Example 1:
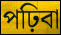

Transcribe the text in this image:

পঢ়িবা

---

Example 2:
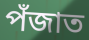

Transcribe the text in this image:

পঁজাত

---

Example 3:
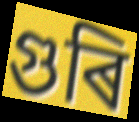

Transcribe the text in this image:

গুৰি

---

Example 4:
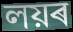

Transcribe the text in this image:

লয়ৰ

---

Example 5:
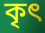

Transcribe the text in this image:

কৃৎ